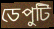
ডেপুটি